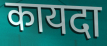
कायदा